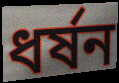
ধর্ষন